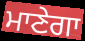
ਮਾਣੇਗਾ